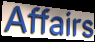
Affairs